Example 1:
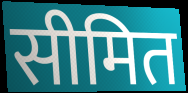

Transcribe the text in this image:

सीमित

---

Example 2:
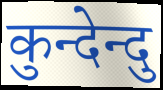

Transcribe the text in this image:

कुन्देन्दु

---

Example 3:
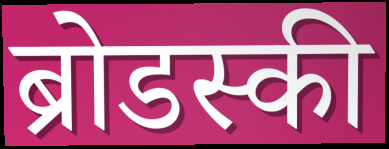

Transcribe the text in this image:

ब्रोडस्की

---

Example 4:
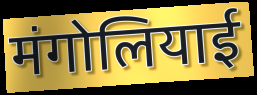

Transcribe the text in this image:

मंगोलियाई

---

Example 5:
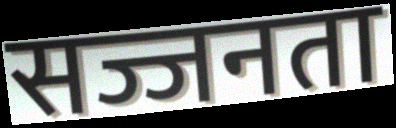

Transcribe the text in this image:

सज्जनता